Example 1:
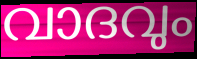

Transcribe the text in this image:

വാദവും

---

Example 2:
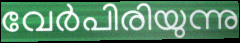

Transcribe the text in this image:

വേർപിരിയുന്നു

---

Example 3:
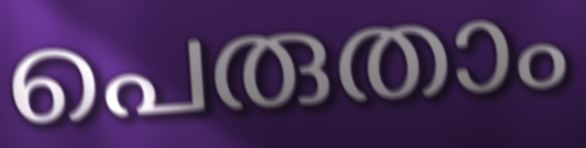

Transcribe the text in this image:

പെരുതാം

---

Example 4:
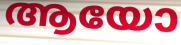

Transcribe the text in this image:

ആയോ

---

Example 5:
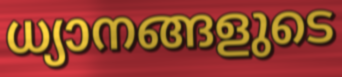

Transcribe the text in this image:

ധ്യാനങ്ങളുടെ